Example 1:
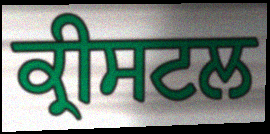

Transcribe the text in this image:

ਕ੍ਰੀਸਟਲ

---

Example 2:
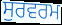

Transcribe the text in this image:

ਸੁਰਵਰਮ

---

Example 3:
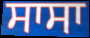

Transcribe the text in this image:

ਸਾਸਾ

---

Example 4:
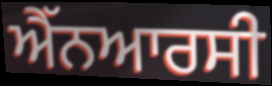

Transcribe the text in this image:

ਐੱਨਆਰਸੀ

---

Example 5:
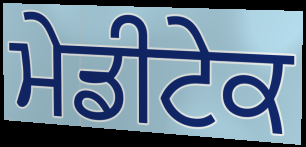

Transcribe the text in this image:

ਮੇਡੀਟੇਕ